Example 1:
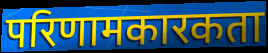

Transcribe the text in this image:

परिणामकारकता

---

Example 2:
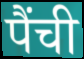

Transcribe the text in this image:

पैंची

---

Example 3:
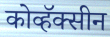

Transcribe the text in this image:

कोव्हॅक्सीन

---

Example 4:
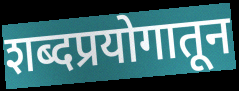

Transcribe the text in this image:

शब्दप्रयोगातून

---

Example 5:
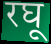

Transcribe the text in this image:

रघू